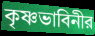
কৃষ্ণভাবিনীর